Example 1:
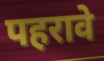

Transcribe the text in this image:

पहरावे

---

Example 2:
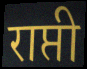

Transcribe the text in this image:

राप्ती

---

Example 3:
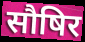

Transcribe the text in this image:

सौषिर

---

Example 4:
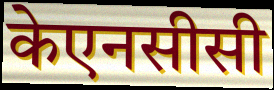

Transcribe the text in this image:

केएनसीसी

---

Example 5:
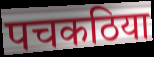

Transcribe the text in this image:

पचकठिया